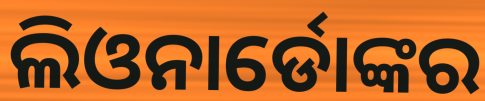
ଲିଓନାର୍ଡୋଙ୍କର